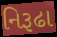
નિરૂઢા